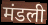
मंडली